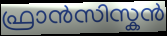
ഫ്രാൻസിസ്കൻ